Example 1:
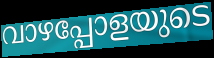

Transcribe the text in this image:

വാഴപ്പോളയുടെ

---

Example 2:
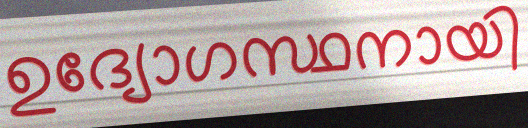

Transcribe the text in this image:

ഉദ്യോഗസ്ഥനായി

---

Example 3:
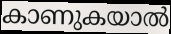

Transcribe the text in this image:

കാണുകയാൽ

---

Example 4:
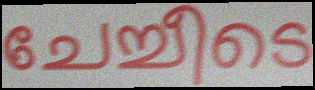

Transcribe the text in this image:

ചേച്ചീടെ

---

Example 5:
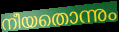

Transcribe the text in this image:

നീയതൊന്നും